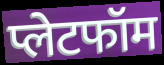
प्लेटफॉम